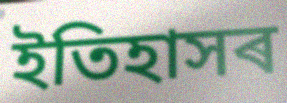
ইতিহাসৰ